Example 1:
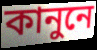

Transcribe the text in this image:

কানুনে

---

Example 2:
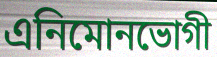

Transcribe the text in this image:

এনিমোনভোগী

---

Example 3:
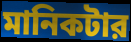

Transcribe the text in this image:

মানিকটার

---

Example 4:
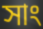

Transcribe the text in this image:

সাং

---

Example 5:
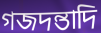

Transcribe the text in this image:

গজদন্তাদি